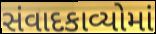
સંવાદકાવ્યોમાં